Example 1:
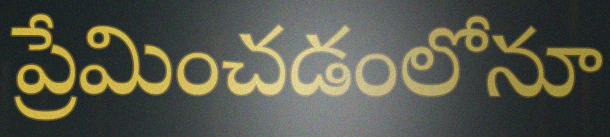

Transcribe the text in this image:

ప్రేమించడంలోనూ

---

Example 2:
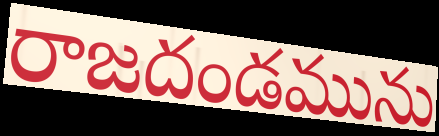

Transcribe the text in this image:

రాజదండమును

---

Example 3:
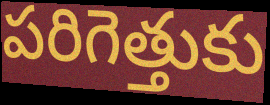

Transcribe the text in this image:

పరిగెత్తుకు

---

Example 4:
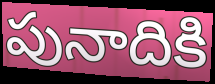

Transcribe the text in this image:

పునాదికి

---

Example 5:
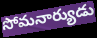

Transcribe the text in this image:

సోమనార్యుడు